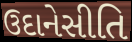
ઉદાનેસીતિ